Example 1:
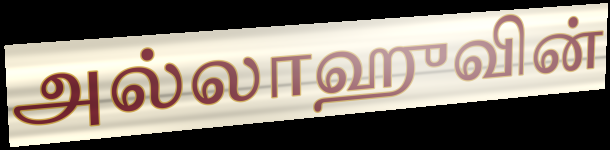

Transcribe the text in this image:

அல்லாஹுவின்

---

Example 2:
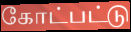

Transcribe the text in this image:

கோட்பட்டு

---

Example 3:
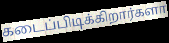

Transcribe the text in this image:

கடைப்பிடிக்கிறார்களா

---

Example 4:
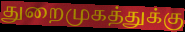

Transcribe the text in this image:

துறைமுகத்துக்கு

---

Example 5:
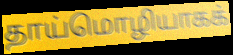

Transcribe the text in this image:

தாய்மொழியாகக்